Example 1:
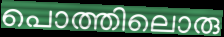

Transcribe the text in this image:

പൊത്തിലൊരു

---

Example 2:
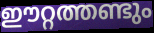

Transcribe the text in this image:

ഈറ്റത്തണ്ടും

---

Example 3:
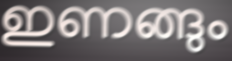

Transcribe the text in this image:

ഇണങ്ങും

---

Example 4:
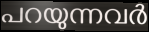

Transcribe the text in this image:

പറയുന്നവർ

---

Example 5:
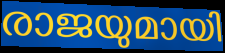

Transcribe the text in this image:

രാജയുമായി